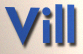
Vill